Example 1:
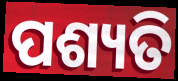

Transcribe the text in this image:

ପଶ୍ୟତି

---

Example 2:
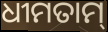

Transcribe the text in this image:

ଧୀମତାମ୍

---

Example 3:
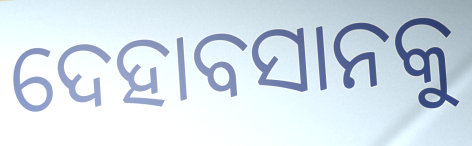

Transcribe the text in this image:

ଦେହାବସାନକୁ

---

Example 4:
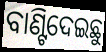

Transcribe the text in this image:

ବାଣ୍ଟିଦେଇଛୁ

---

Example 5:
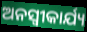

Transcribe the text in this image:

ଅନସ୍ୱୀକାର୍ଯ୍ୟ